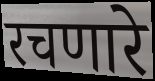
रचणारे